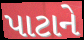
પાટાને